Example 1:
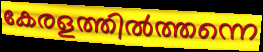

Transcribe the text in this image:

കേരളത്തിൽത്തന്നെ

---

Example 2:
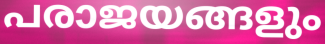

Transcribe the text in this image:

പരാജയങ്ങളും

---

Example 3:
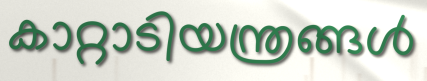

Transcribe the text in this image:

കാറ്റാടിയന്ത്രങ്ങൾ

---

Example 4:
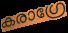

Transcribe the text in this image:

കരാഗ്രേ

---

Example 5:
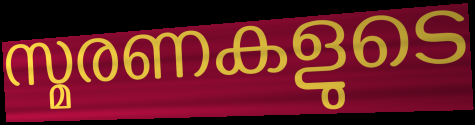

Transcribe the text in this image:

സ്മരണകളുടെ